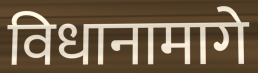
विधानामागे